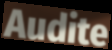
Audite